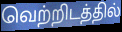
வெற்றிடத்தில்